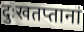
दुःखतप्तानां